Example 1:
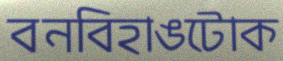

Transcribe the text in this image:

বনবিহাঙটোক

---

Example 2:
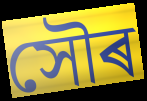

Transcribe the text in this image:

সৌৰ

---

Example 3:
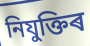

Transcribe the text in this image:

নিযুক্তিৰ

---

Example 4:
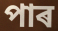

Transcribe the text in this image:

পাৰ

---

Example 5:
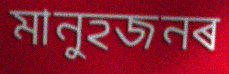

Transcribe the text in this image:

মানুহজনৰ